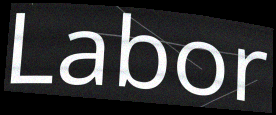
Labor